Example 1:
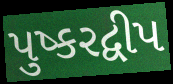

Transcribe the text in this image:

પુષ્કરદ્વીપ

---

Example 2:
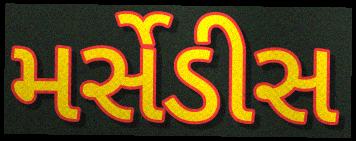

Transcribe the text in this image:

મર્સેડીસ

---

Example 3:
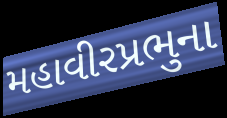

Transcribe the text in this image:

મહાવીરપ્રભુના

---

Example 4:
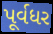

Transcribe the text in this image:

પૂર્વધર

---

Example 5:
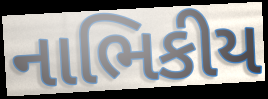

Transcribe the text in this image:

નાભિકીય